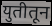
युतीतून